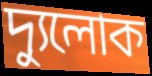
দ্যুলোক